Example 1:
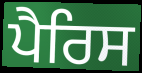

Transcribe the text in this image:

ਪੈਰਿਸ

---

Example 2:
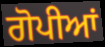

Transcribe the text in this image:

ਗੋਪੀਆਂ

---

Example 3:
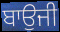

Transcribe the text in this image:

ਬਾਉਜੀ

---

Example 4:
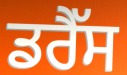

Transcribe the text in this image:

ਡਰੈੱਸ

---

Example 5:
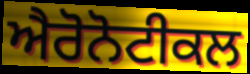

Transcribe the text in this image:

ਐਰੋਨੋਟੀਕਲ